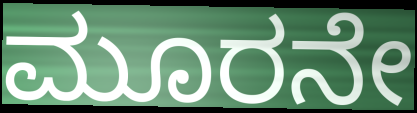
ಮೂರನೇ